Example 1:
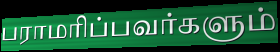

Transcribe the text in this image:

பராமரிப்பவர்களும்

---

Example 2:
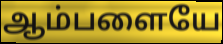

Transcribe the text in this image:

ஆம்பளையே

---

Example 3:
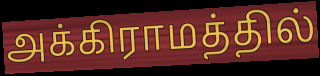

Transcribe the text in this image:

அக்கிராமத்தில்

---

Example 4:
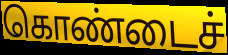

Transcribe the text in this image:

கொண்டைச்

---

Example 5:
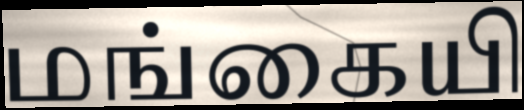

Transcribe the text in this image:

மங்கையி